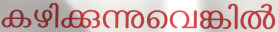
കഴിക്കുന്നുവെങ്കിൽ